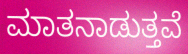
ಮಾತನಾಡುತ್ತವೆ